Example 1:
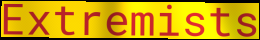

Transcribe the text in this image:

Extremists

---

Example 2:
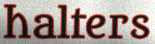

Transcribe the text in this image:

halters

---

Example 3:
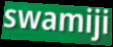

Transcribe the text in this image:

swamiji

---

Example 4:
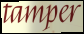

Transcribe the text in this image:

tamper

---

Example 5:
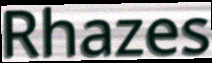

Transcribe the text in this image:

Rhazes